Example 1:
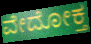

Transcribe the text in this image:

ವೇದೋಕ್ತ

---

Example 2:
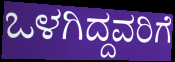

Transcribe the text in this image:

ಒಳಗಿದ್ದವರಿಗೆ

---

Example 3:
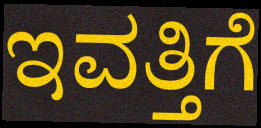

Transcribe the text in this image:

ಇವತ್ತಿಗೆ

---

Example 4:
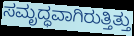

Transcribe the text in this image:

ಸಮೃದ್ಧವಾಗಿರುತ್ತಿತ್ತು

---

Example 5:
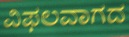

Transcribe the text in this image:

ವಿಫಲವಾಗದ